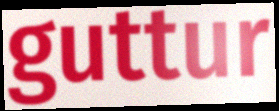
guttur